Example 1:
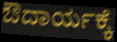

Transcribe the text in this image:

ಔದಾರ್ಯಕ್ಕೆ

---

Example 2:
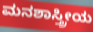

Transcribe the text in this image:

ಮನಶಾಸ್ತ್ರೀಯ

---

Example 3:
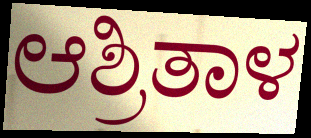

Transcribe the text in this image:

ಆಶ್ರಿತಾಳ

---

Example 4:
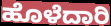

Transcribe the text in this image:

ಹೊಳೆದಾರಿ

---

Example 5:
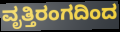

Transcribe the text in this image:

ವೃತ್ತಿರಂಗದಿಂದ